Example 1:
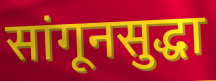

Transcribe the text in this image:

सांगूनसुद्धा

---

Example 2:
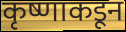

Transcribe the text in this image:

कृष्णाकडून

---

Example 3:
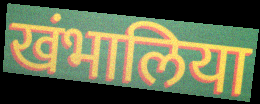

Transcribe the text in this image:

खंभालिया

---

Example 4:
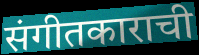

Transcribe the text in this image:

संगीतकाराची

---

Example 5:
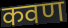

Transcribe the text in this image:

कवण